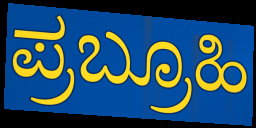
ಪ್ರಬ್ರೂಹಿ